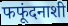
फफूंदनाशी